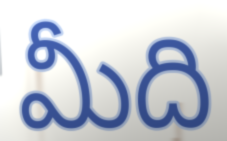
మీది